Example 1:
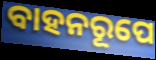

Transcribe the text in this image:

ବାହନରୂପେ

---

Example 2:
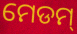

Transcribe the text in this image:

ମେଡମ୍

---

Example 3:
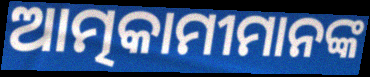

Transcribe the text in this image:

ଆତ୍ମକାମୀମାନଙ୍କ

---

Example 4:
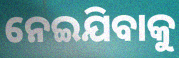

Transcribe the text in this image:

ନେଇଯିବାକୁ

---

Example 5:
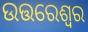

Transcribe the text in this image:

ଉତ୍ତରେଶ୍ୱର